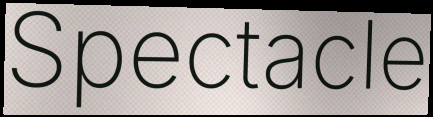
Spectacle